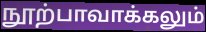
நூற்பாவாக்கலும்